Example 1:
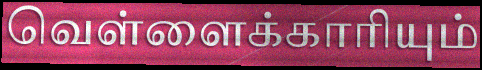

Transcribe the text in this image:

வெள்ளைக்காரியும்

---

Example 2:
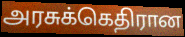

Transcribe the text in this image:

அரசுக்கெதிரான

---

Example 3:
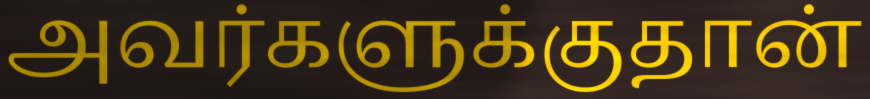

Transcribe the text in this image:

அவர்களுக்குதான்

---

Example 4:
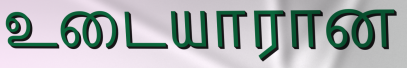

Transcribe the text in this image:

உடையாரான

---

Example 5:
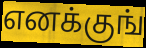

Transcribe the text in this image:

எனக்குங்